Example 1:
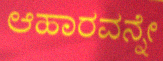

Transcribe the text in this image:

ಆಹಾರವನ್ನೇ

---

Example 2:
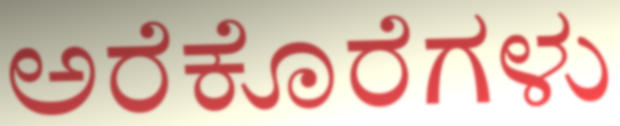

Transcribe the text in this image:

ಅರೆಕೊರೆಗಳು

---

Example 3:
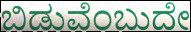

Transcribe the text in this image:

ಬಿಡುವೆಂಬುದೇ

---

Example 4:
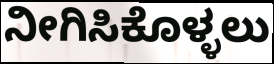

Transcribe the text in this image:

ನೀಗಿಸಿಕೊಳ್ಳಲು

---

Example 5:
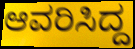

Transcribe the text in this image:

ಆವರಿಸಿದ್ದ